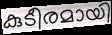
കുടീരമായി